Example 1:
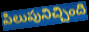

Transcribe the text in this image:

పిలుపునిచ్చింది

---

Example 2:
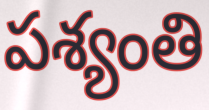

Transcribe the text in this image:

పశ్యంతి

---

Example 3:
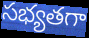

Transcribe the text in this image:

సభ్యతగా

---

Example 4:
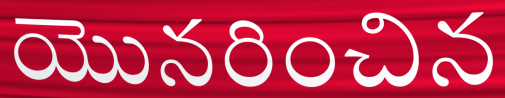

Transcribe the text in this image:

యొనరించిన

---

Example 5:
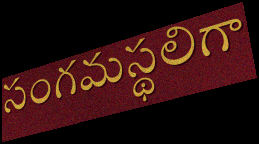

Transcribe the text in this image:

సంగమస్థలిగా